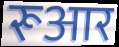
रूआर